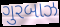
ગુરબાઝ